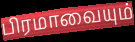
பிரமாவையும்